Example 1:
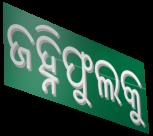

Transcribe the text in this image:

ଜହ୍ନିଫୁଲକୁ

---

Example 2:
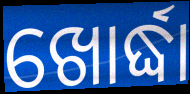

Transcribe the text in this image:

ଖୋର୍ଦ୍ଧା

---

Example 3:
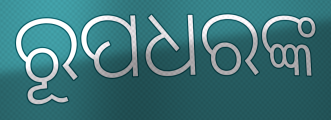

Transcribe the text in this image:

ରୂପଧରଙ୍କ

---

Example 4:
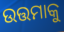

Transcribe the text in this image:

ଉତ୍ତମାକୁ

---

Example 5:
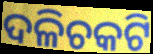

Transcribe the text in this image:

ଦଳିଚକଟି